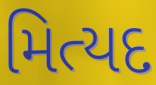
મિત્યદ